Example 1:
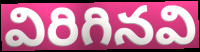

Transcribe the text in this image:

విరిగినవి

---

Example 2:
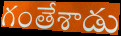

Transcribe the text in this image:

గంతేశాడు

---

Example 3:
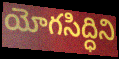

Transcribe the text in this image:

యోగసిద్ధిని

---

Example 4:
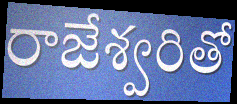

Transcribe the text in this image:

రాజేశ్వరితో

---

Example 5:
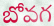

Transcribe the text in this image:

బోవగ